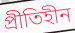
প্রীতিহীন